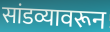
सांडव्यावरून